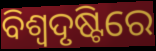
ବିଶ୍ଵଦୃଷ୍ଟିରେ